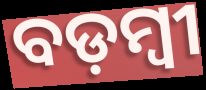
ବଡ଼ମ୍ବୀ